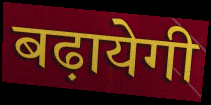
बढ़ायेगी